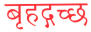
बृहद्गच्छ